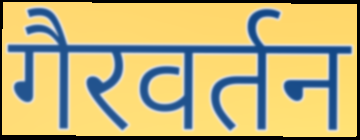
गैरवर्तन